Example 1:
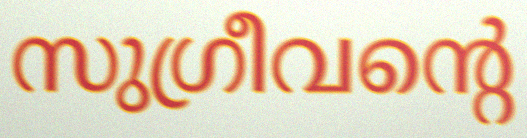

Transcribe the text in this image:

സുഗ്രീവന്റെ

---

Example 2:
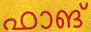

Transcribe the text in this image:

ഫാങ്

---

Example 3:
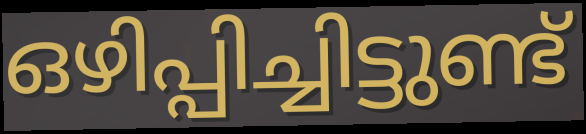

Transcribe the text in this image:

ഒഴിപ്പിച്ചിട്ടുണ്ട്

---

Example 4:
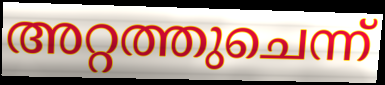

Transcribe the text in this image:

അറ്റത്തുചെന്ന്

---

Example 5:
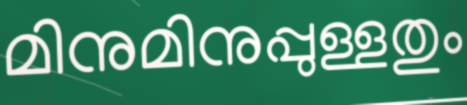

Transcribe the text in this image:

മിനുമിനുപ്പുള്ളതും